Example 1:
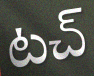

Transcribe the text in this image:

టచ్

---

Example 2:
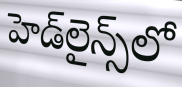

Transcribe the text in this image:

హెడ్‌లైన్స్‌లో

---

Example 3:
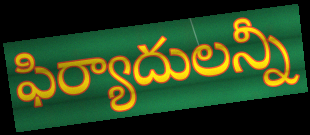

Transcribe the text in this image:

ఫిర్యాదులన్నీ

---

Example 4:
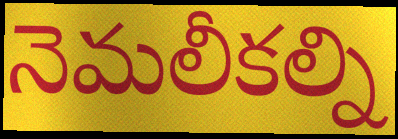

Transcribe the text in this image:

నెమలీకల్ని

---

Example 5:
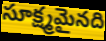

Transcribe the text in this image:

సూక్ష్మమైనది